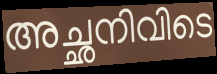
അച്ഛനിവിടെ